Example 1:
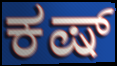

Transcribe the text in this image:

ಕಷ್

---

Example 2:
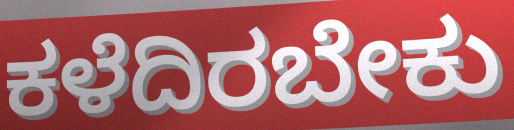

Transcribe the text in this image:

ಕಳೆದಿರಬೇಕು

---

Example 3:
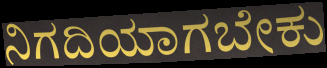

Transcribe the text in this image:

ನಿಗದಿಯಾಗಬೇಕು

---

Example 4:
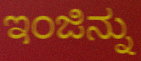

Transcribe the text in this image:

ಇಂಜಿನ್ನು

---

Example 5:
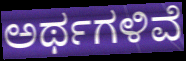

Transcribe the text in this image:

ಅರ್ಥಗಳಿವೆ